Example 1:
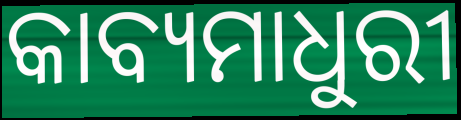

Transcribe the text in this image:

କାବ୍ୟମାଧୁରୀ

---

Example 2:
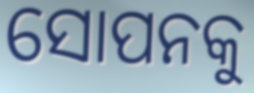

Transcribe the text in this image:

ସୋପନକୁ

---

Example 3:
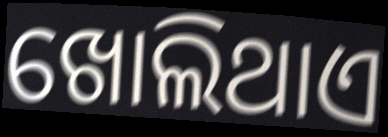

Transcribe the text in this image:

ଖୋଲିଥାଏ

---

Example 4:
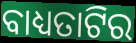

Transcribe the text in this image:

ବାଧ୍ୟତାଟିର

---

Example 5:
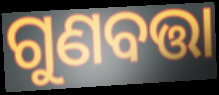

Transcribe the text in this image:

ଗୁଣବତ୍ତା